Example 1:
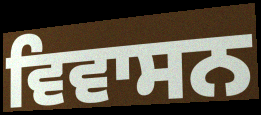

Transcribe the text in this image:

ਵਿਵਾਸਨ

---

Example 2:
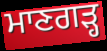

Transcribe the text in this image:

ਮਾਣਗੜ੍ਹ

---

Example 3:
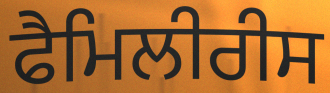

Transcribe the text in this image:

ਫੈਮਿਲੀਰੀਸ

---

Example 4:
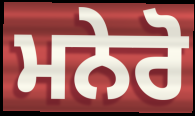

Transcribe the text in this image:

ਮਨੇਰੋ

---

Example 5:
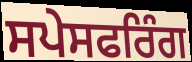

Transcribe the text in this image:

ਸਪੇਸਫਰਿੰਗ